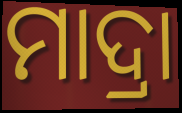
ମାଦ୍ରା